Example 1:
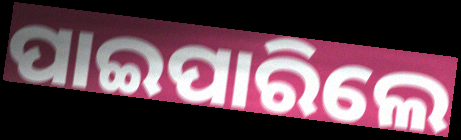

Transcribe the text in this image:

ପାଇପାରିଲେ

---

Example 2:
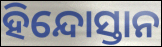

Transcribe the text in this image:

ହିନ୍ଦୋସ୍ତାନ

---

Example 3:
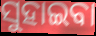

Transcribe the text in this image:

ସୁହାଇବା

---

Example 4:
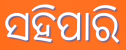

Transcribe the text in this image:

ସହିପାରି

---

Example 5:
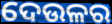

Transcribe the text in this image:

ଦେଉଳର